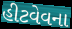
હીટવેવના